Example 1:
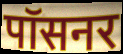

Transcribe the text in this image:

पॉसनर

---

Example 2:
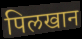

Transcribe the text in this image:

पिलखान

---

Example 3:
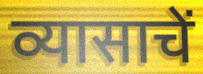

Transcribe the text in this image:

व्यासाचें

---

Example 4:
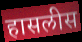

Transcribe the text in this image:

हासलीस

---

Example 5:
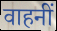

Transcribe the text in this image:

वाहनीं